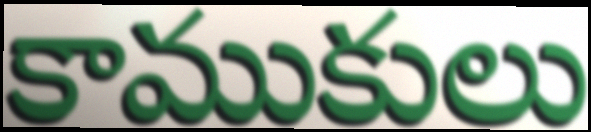
కాముకులు